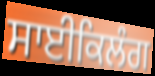
ਸਾਈਕਿਲੰਗ